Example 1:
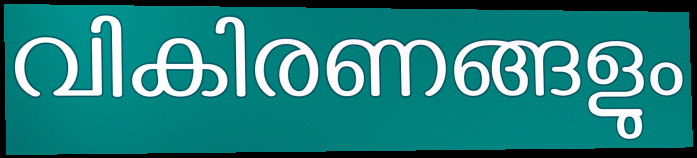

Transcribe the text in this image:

വികിരണങ്ങളും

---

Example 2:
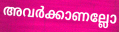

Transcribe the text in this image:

അവർക്കാണല്ലോ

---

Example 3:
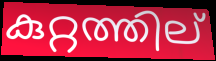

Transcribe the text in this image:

കുറ്റത്തില്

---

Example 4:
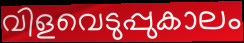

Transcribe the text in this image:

വിളവെടുപ്പുകാലം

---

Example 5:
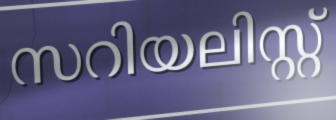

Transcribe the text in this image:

സറിയലിസ്റ്റ്